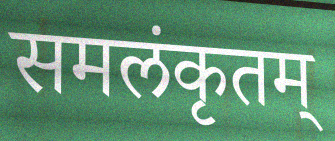
समलंकृतम्